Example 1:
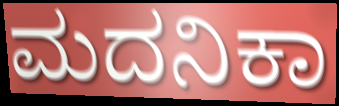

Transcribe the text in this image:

ಮದನಿಕಾ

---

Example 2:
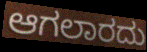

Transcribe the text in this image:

ಆಗಲಾರದು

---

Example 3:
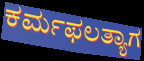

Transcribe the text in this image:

ಕರ್ಮಫಲತ್ಯಾಗ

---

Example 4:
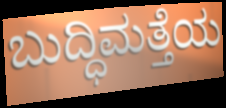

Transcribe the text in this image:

ಬುದ್ಧಿಮತ್ತೆಯ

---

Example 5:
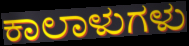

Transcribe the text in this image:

ಕಾಲಾಳುಗಳು